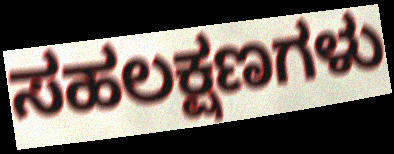
ಸಹಲಕ್ಷಣಗಳು